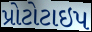
પ્રોટોટાઇપ